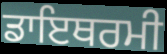
ਡਾਇਥਰਮੀ